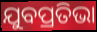
ଯୁବପ୍ରତିଭା